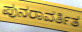
ಪುನರಾವರ್ತಿತ